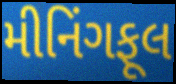
મીનિંગફૂલ